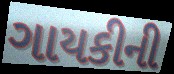
ગાયકીની